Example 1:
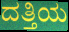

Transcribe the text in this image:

ದತ್ತಿಯ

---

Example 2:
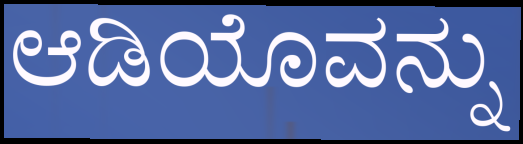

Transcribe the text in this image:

ಆಡಿಯೊವನ್ನು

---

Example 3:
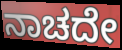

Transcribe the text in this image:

ನಾಚದೇ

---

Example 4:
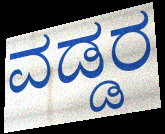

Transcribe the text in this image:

ವಡ್ಡರ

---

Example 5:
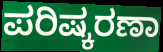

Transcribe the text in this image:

ಪರಿಷ್ಕರಣಾ